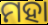
ମହା